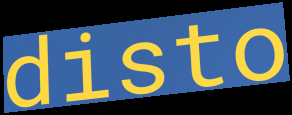
disto